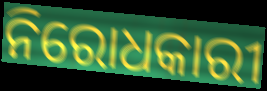
ନିରୋଧକାରୀ